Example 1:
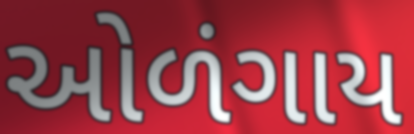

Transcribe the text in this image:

ઓળંગાય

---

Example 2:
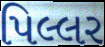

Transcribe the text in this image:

પિલ્લર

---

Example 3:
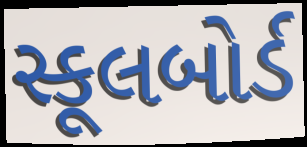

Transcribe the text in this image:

સ્કૂલબોર્ડ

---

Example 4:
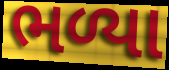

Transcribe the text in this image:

ભળ્યા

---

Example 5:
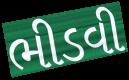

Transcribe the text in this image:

ભીડવી